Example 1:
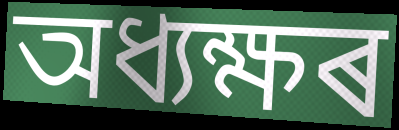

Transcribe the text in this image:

অধ্যক্ষৰ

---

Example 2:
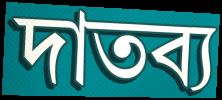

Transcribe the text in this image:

দাতব্য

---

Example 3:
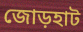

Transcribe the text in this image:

জোড়হাট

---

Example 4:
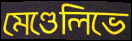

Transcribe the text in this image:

মেণ্ডেলিভে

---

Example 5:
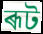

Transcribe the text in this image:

ৰূট